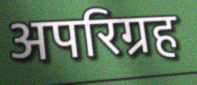
अपरिग्रह